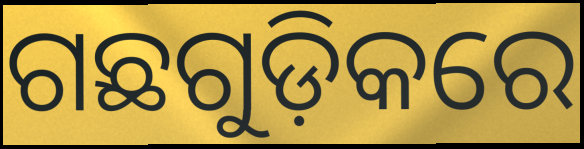
ଗଛଗୁଡ଼ିକରେ